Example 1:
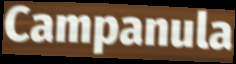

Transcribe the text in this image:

Campanula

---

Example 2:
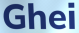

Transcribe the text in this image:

Ghei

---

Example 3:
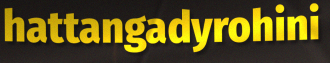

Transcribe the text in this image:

hattangadyrohini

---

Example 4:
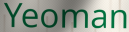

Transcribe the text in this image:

Yeoman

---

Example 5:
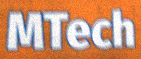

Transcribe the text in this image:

MTech